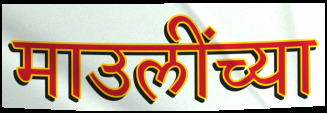
माउलींच्या